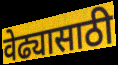
वेढ्यासाठी